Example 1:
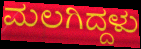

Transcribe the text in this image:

ಮಲಗಿದ್ದಳು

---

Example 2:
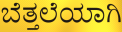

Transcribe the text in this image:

ಬೆತ್ತಲೆಯಾಗಿ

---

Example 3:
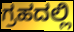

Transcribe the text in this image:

ಗ್ರಹದಲ್ಲಿ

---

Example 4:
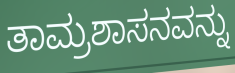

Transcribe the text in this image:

ತಾಮ್ರಶಾಸನವನ್ನು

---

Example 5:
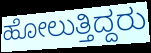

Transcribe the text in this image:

ಹೋಲುತ್ತಿದ್ದರು